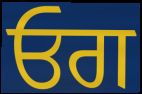
ਓਗ